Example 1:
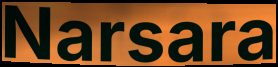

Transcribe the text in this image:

Narsara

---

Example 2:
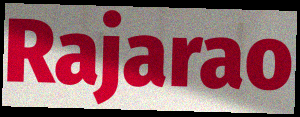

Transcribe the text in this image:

Rajarao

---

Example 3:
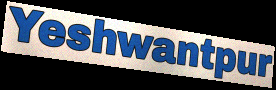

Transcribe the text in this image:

Yeshwantpur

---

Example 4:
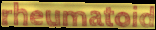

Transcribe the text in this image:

rheumatoid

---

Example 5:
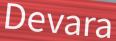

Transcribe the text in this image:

Devara